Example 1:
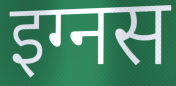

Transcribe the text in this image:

इग्नस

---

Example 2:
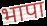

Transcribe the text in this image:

भापा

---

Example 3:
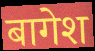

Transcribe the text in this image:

बागेश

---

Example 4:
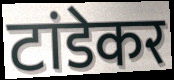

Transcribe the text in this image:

टांडेकर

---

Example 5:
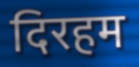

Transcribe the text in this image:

दिरहम